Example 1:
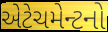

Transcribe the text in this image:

એટેચમેન્ટનો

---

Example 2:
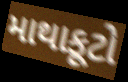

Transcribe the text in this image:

માથાકૂટો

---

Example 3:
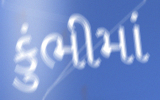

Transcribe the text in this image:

કુંભીમાં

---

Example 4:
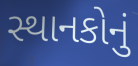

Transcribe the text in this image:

સ્થાનકોનું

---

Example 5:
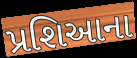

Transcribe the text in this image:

પ્રશિઆના